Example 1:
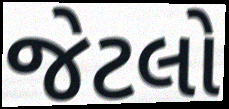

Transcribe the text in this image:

જેટલો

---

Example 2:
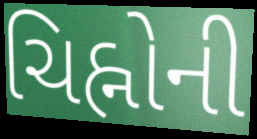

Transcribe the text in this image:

ચિહ્નોની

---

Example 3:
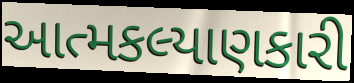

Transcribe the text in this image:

આત્મકલ્યાણકારી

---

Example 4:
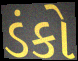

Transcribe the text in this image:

ડંકો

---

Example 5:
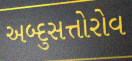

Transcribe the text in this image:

અબ્દુસત્તોરોવ